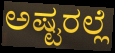
ಅಷ್ಟರಲ್ಲೆ